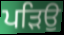
ਪੜਿਉ